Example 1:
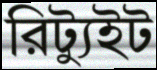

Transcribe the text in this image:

রিট্যুইট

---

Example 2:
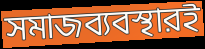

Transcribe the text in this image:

সমাজব্যবস্থারই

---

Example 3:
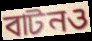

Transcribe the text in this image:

বাটনও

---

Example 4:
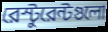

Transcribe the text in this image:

রেস্টুরেন্টগুলো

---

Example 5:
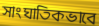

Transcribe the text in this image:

সাংঘাতিকভাবে